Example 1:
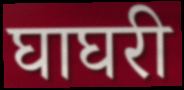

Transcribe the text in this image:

घाघरी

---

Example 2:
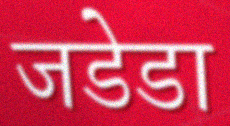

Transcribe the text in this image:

जडेडा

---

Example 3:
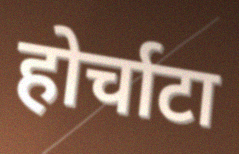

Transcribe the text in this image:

होर्चाटा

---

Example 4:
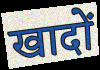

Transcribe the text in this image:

खादों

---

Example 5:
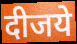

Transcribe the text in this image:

दीजये